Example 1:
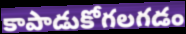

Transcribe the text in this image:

కాపాడుకోగలగడం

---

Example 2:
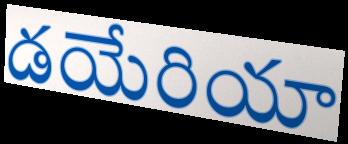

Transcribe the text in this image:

డయేరియా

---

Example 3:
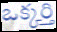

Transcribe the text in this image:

ఒక్కర్తి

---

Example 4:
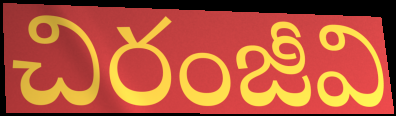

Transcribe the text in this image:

చిరంజీవి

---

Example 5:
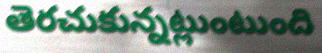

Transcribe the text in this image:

తెరచుకున్నట్లుంటుంది